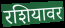
रशियावर